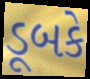
ડૂબકે